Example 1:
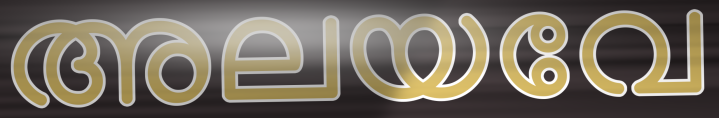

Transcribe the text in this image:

അലയവേ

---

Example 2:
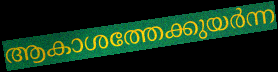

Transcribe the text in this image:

ആകാശത്തേക്കുയർന്ന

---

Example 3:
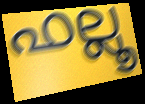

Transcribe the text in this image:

ഫല്ലൂ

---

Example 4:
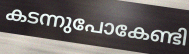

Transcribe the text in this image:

കടന്നുപോകേണ്ടി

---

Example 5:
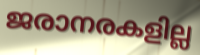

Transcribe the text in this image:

ജരാനരകളില്ല